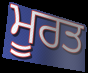
ਮੂਰਤ